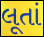
લૂતાં